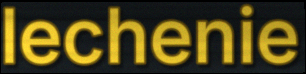
lechenie